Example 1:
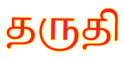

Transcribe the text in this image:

தருதி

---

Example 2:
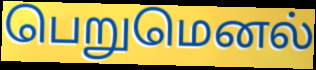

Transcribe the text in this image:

பெறுமெனல்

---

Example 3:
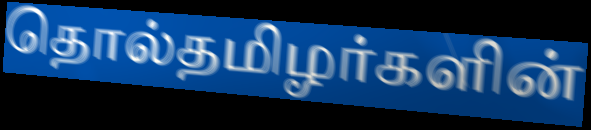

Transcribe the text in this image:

தொல்தமிழர்களின்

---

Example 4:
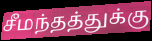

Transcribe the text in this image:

சீமந்தத்துக்கு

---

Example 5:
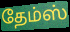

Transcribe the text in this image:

தேம்ஸ்